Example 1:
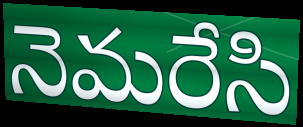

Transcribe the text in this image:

నెమరేసి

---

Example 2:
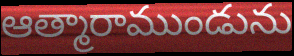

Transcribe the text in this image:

ఆత్మారాముండును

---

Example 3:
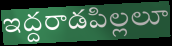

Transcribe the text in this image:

ఇద్దరాడపిల్లలూ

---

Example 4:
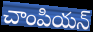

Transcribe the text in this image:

చాంపియన్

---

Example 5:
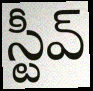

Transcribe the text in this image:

స్టీవ్